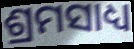
ଶ୍ରମସାଧ୍ୟ